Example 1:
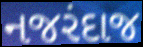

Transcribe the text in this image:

નજરંદાજ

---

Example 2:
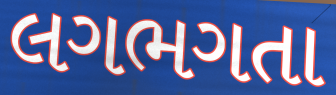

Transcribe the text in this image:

લગભગતા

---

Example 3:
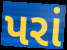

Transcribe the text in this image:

પરાં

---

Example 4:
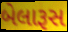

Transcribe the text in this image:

બેલારૂસ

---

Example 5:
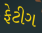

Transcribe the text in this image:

ફેટીગ